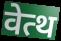
वेत्थ